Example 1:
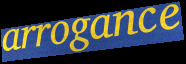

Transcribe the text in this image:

arrogance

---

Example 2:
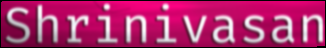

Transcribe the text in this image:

Shrinivasan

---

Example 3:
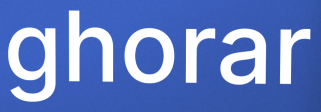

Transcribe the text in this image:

ghorar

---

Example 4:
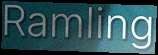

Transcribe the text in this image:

Ramling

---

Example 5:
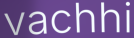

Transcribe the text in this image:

vachhi